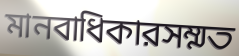
মানবাধিকারসম্মত